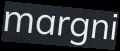
margni